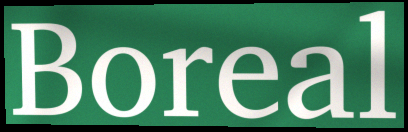
Boreal